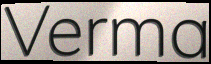
Verma